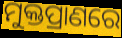
ମୁକ୍ତପ୍ରାଣରେ